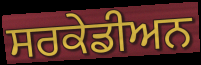
ਸਰਕੇਡੀਅਨ